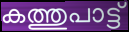
കത്തുപാട്ട്